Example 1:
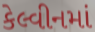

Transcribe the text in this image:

કેલ્વીનમાં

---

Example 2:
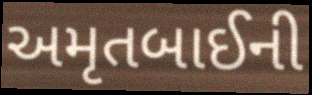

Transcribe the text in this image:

અમૃતબાઈની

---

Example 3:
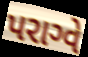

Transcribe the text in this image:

પરાગ્વે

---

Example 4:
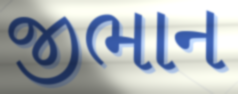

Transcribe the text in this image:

જીભાન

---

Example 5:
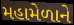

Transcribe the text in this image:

મહામેળાને